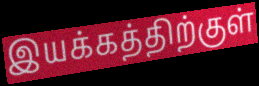
இயக்கத்திற்குள்